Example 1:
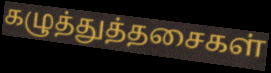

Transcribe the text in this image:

கழுத்துத்தசைகள்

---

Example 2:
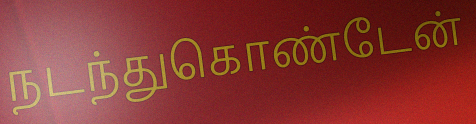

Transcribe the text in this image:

நடந்துகொண்டேன்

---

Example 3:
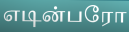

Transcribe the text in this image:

எடின்பரோ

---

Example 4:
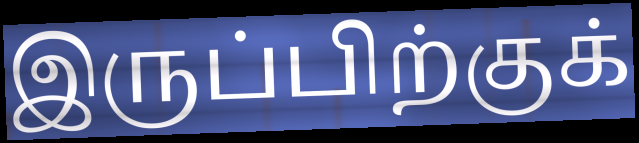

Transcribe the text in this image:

இருப்பிற்குக்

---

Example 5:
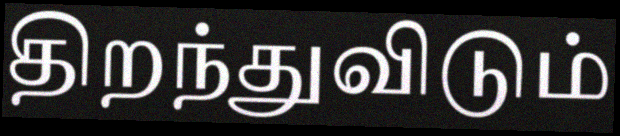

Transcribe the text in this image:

திறந்துவிடும்